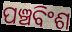
ପଞ୍ଚବିଂଶ